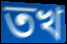
তখ